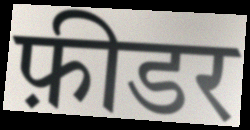
फ़ीडर